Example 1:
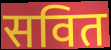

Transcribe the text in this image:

सवित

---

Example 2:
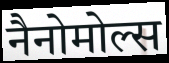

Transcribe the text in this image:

नैनोमोल्स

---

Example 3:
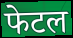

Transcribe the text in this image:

फेटल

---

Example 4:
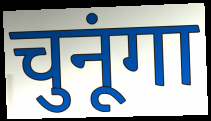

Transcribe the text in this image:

चुनूंगा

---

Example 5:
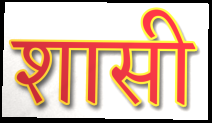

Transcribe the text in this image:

शासी